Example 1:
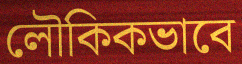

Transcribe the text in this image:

লৌকিকভাবে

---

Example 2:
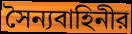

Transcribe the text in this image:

সৈন্যবাহিনীর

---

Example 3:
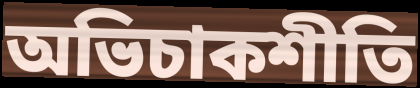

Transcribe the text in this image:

অভিচাকশীতি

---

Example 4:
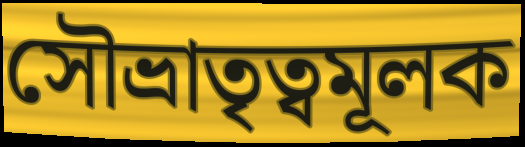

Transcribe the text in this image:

সৌভ্রাতৃত্বমূলক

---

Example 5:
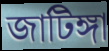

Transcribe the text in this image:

জাটিঙ্গা